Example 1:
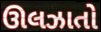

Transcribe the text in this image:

ઊલઝાતો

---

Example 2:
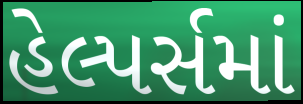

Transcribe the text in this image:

હેલ્પર્સમાં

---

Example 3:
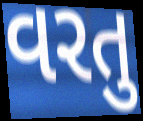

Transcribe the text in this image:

વરતુ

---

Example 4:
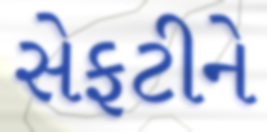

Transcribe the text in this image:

સેફટીને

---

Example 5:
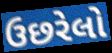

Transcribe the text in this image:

ઉછરેલો